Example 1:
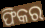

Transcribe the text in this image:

ଫିକର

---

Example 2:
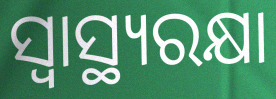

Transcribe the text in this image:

ସ୍ବାସ୍ଥ୍ୟରକ୍ଷା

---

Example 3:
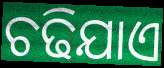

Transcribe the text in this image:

ଚଢିଯାଏ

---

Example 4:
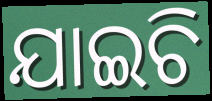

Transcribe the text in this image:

ଯାଇଚି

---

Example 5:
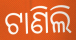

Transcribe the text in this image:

ଟାଣିଲି